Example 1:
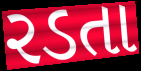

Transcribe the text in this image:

રડતા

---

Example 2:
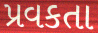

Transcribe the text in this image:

પ્રવકતા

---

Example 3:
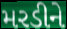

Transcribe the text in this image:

મરડીને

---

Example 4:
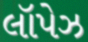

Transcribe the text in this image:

લૉપેઝ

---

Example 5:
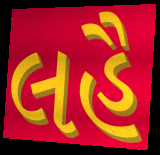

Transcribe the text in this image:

લહૈ